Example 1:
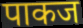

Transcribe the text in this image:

पाकज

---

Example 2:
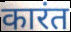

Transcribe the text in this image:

कारंत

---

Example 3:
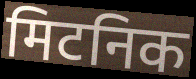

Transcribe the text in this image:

मिटनिक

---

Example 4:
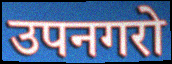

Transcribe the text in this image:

उपनगरो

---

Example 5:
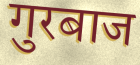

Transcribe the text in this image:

गुरबाज